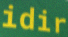
idir